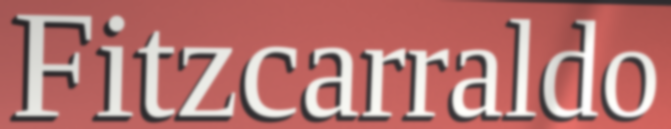
Fitzcarraldo